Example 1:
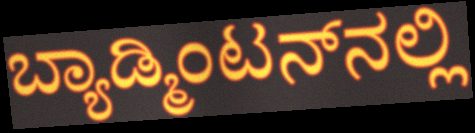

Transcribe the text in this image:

ಬ್ಯಾಡ್ಮಿಂಟನ್‌ನಲ್ಲಿ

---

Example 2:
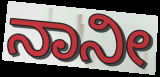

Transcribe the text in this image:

ನಾನೀ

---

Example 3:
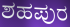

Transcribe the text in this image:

ಶಹಪುರ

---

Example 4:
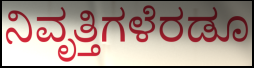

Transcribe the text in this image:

ನಿವೃತ್ತಿಗಳೆರಡೂ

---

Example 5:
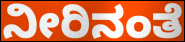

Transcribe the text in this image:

ನೀರಿನಂತೆ